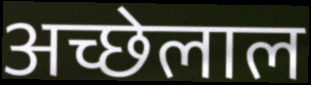
अच्छेलाल